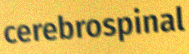
cerebrospinal